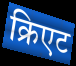
क्रिएट